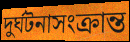
দুর্ঘটনাসংক্রান্ত